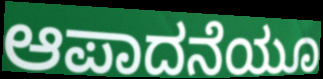
ಆಪಾದನೆಯೂ